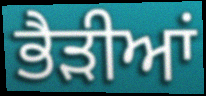
ਭੈੜੀਆਂ